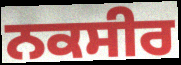
ਨਕਸੀਰ